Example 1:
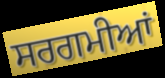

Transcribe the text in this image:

ਸਰਗਮੀਆਂ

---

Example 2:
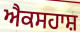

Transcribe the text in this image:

ਐਕਸਹਾਸ਼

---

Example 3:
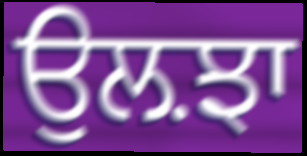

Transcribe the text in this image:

ਉਲ਼ਝਾ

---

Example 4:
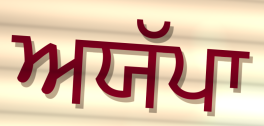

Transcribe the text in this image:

ਅਯੱਪਾ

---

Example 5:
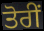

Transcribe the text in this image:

ਤੋਰੀਂ